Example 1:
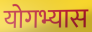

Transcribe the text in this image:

योगभ्यास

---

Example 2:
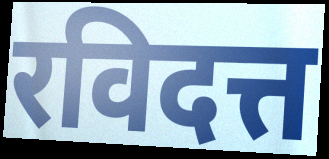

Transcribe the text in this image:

रविदत्त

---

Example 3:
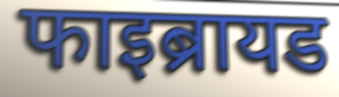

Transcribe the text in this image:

फाइब्रायड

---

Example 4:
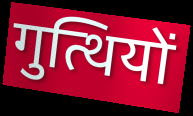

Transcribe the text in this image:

गुत्थियों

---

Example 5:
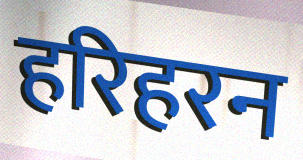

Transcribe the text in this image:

हरिहरन